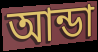
আন্ডা